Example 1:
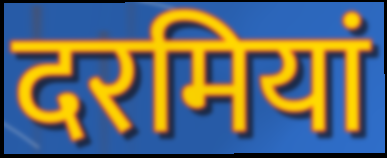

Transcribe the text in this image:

दरमियां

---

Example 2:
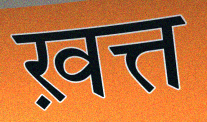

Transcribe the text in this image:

ख़त्त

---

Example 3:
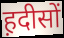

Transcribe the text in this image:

ह़दीसों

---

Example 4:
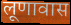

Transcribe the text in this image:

लूणावास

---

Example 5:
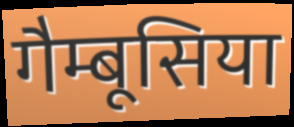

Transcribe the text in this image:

गैम्बूसिया